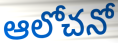
ఆలోచనో